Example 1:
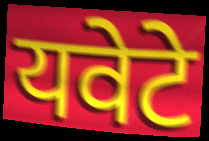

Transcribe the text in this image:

यवेटे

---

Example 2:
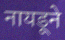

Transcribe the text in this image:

नायडूने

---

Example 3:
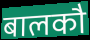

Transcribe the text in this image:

बालकौ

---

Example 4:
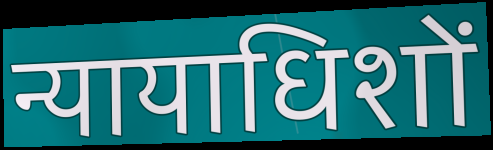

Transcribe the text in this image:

न्यायाधिशों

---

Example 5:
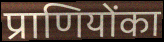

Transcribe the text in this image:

प्राणियोंका